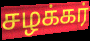
சழக்கர்